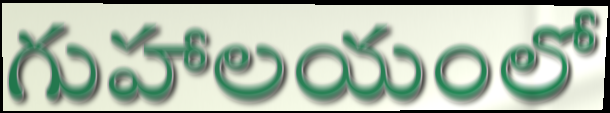
గుహాలయంలో